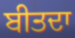
ਬੀਤਦਾ